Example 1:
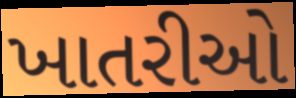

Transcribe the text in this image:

ખાતરીઓ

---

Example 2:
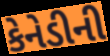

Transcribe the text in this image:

કેનેડીની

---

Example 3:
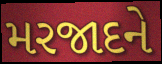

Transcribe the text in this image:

મરજાદને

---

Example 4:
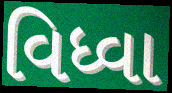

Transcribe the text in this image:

વિધ્વા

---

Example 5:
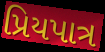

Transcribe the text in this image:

પ્રિયપાત્ર